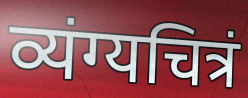
व्यंग्यचित्रं